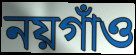
নয়গাঁও